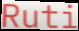
Ruti